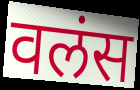
वलंस